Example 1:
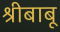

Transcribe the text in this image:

श्रीबाबू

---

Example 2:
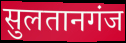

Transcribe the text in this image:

सुलतानगंज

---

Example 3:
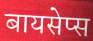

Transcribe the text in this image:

बायसेप्स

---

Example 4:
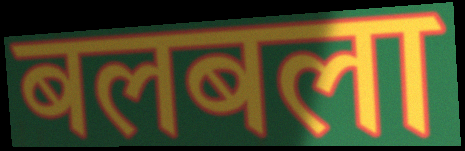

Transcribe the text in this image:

बलबला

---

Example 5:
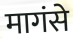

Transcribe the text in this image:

मागंसे